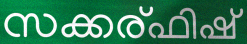
സക്കര്ഫിഷ്